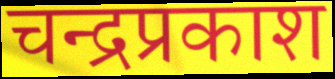
चन्द्रप्रकाश